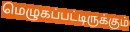
மெழுகப்பட்டிருக்கும்